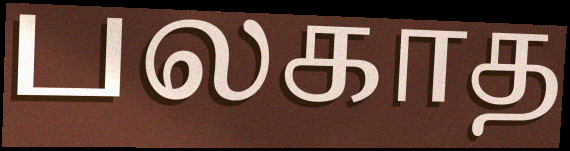
பலகாத